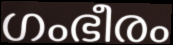
ഗംഭീരം